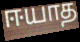
ஈயாத